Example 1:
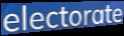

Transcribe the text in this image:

electorate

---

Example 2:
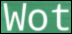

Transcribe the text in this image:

Wot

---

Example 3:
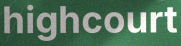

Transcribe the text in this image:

highcourt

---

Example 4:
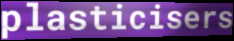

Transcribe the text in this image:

plasticisers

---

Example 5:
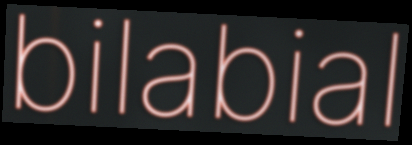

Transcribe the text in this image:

bilabial